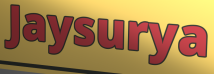
Jaysurya